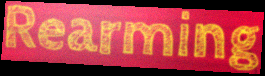
Rearming